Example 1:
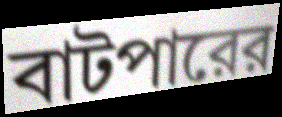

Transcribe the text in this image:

বাটপারের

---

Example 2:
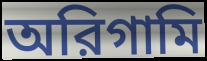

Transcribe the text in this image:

অরিগামি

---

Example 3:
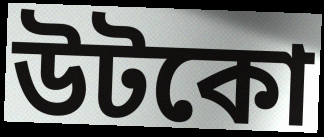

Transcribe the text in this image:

উটকো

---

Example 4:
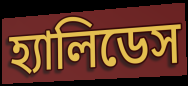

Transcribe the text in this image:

হ্যালিডেস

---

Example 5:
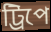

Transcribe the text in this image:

ট্রিপে